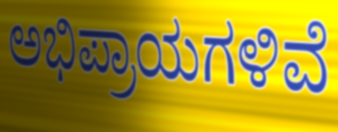
ಅಭಿಪ್ರಾಯಗಳಿವೆ